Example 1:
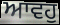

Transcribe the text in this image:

ਆਵਹੁ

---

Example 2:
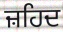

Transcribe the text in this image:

ਜ਼ਹਿਦ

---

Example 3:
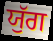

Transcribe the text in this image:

ਯੁੱਗ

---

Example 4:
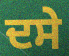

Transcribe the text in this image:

ਦਸੇ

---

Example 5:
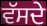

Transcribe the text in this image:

ਵੱਸਦੇ